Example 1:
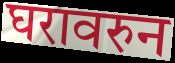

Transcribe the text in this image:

घरावरुन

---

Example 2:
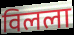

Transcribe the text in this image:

विलला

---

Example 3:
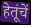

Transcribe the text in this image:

हेतूंचें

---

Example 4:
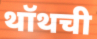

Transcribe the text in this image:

थॉथची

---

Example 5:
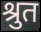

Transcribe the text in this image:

श्रुत